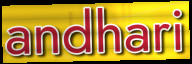
andhari